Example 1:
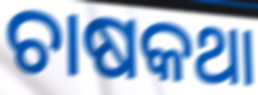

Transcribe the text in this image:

ଚାଷକଥା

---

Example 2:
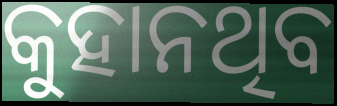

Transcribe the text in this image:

କୁହାନଥିବ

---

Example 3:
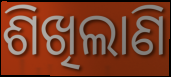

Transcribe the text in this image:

ଶିଖିଲାଣି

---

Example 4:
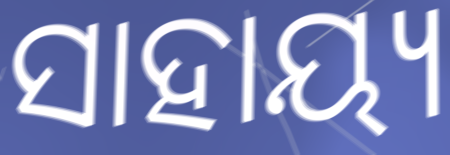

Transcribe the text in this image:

ସାହାୟ୍ୟ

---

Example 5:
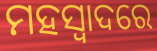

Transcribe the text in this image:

ମହସ୍ୱାଦରେ